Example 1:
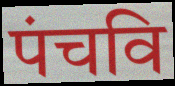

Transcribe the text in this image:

पंचवि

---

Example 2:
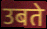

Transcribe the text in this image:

उबते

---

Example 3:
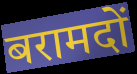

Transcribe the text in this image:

बरामदों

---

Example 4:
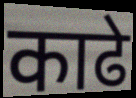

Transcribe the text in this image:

काढे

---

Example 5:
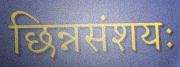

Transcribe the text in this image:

छिन्नसंशयः